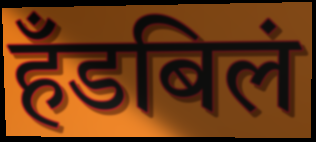
हँडबिलं